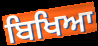
ਬਿਖਿਆ